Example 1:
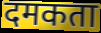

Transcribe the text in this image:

दमकता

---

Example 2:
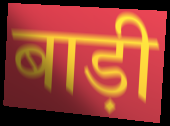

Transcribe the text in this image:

बाड़ी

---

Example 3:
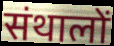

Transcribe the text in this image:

संथालों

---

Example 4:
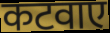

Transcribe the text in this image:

कटवाए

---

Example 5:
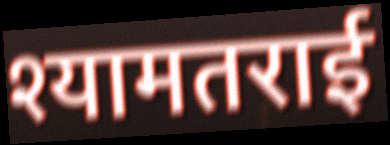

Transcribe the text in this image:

श्यामतराई